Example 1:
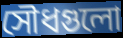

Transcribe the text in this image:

সৌধগুলো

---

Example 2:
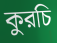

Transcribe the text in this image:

কুরচি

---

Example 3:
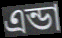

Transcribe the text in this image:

এন্ডা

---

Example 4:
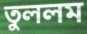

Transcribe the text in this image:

তুললম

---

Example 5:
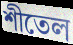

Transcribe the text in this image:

শীতেল